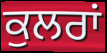
ਕੁਲਰਾਂ